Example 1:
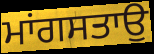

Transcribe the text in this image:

ਮਾਂਗਸਤਾਉ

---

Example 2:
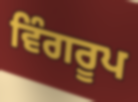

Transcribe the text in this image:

ਵਿੰਗਰੂਪ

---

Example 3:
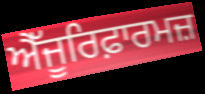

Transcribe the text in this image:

ਐੱਜੂਰਿਫ਼ਾਰਮਜ਼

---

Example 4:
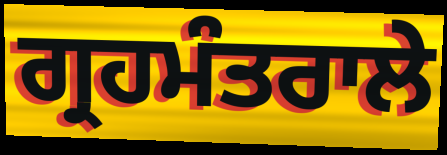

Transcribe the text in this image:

ਗ੍ਰਹਮੰਤਰਾਲੇ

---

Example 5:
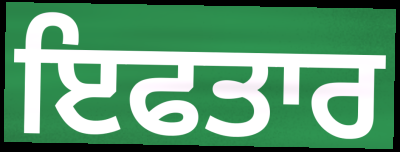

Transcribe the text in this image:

ਇਫਤਾਰ